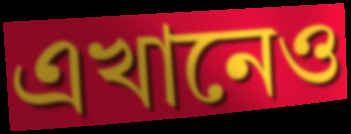
এখানেও